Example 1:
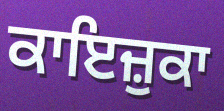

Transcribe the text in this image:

ਕਾਇਜ਼ੁਕਾ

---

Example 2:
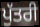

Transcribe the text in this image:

ਪੁੱਤਰੀ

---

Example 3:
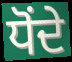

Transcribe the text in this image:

ਧੋਂਦੇ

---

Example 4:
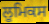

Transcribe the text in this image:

ਲੂਮਿਕਸ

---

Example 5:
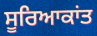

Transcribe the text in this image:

ਸੂਰਿਆਕਾਂਤ